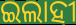
ଇଲାହୀ